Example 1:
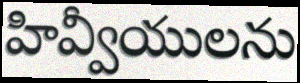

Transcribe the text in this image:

హివ్వీయులను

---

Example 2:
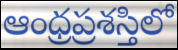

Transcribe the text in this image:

ఆంధ్రప్రశస్తిలో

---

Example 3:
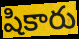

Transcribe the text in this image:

షికారు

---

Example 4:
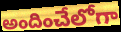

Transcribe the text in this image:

అందించేలోగా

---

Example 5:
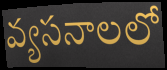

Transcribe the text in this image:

వ్యసనాలలో